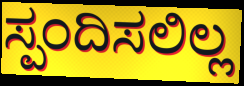
ಸ್ಪಂದಿಸಲಿಲ್ಲ